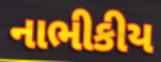
નાભીકીય